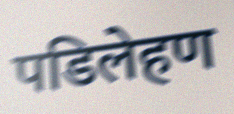
पडिलेहण